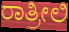
ರಾತ್ರೀಲಿ